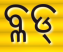
ବ୍ଳଡ୍